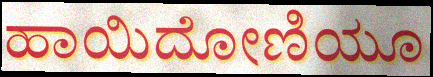
ಹಾಯಿದೋಣಿಯೂ